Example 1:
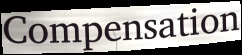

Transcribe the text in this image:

Compensation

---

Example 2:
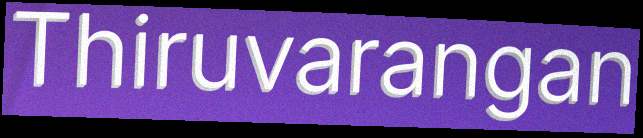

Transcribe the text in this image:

Thiruvarangan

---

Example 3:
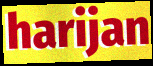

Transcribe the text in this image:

harijan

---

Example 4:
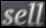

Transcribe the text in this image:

sell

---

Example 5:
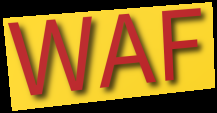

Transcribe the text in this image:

WAF